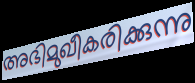
അഭിമുഖീകരിക്കുന്നു